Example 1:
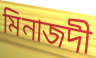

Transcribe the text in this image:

মিনাজদী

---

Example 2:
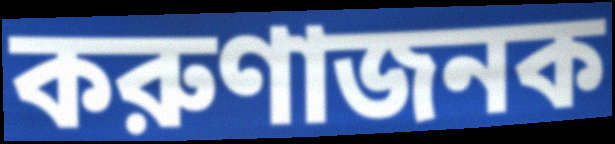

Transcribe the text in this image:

করুণাজনক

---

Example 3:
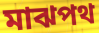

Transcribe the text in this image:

মাঝপথ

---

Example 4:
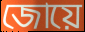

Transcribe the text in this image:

জোয়ে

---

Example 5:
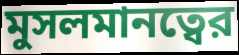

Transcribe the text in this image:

মুসলমানত্বের